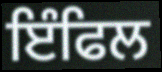
ਇੰਫਿਲ